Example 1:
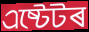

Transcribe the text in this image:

এষ্টেটৰ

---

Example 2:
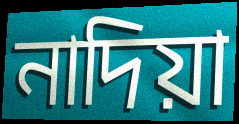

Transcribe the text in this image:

নাদিয়া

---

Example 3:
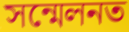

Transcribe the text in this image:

সন্মেলনত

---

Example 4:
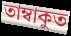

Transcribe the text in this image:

তাম্বাকুত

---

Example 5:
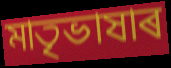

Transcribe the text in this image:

মাতৃভাষাৰ